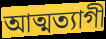
আত্মত্যাগী